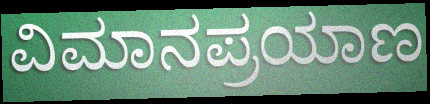
ವಿಮಾನಪ್ರಯಾಣ